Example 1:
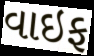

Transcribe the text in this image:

વાઇફ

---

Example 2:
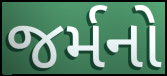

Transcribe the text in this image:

જર્મનો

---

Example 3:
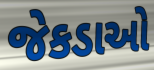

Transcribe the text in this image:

જેકડાઓ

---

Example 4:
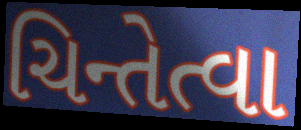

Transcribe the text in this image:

ચિન્તેત્વા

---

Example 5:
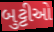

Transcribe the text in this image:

બુટ્ટીઓ